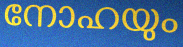
നോഹയും